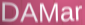
DAMar